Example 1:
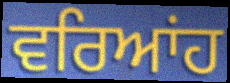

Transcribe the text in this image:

ਵਰਿਆਂਹ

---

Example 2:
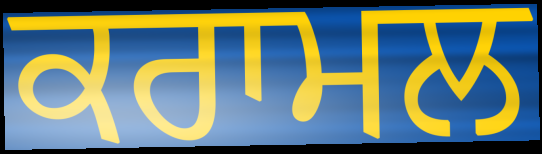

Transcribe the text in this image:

ਕਰਾਮਲ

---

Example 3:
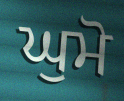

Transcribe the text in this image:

ਘੁਮੋ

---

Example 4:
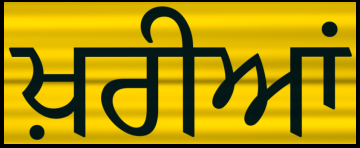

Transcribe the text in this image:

ਖ਼ਰੀਆਂ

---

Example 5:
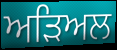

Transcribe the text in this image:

ਅੜਿਅਲ